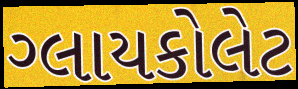
ગ્લાયકોલેટ